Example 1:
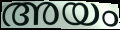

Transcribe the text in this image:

അയം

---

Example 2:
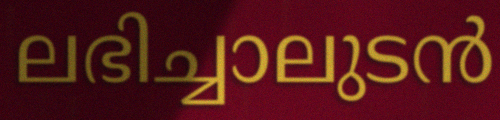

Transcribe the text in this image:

ലഭിച്ചാലുടൻ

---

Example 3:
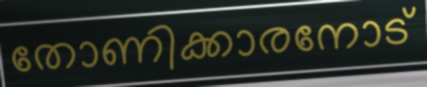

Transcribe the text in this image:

തോണിക്കാരനോട്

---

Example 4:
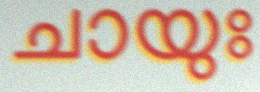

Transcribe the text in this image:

ചായുഃ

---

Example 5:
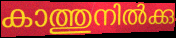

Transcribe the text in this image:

കാത്തുനിൽക്കു